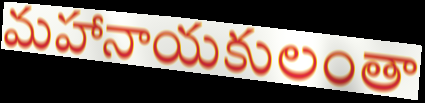
మహానాయకులంతా